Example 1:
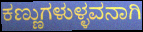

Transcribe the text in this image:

ಕಣ್ಣುಗಳುಳ್ಳವನಾಗಿ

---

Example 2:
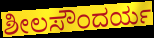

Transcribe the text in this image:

ಶೀಲಸೌಂದರ್ಯ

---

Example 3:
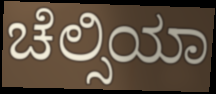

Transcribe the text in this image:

ಚೆಲ್ಸಿಯಾ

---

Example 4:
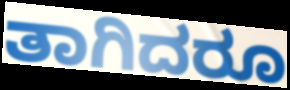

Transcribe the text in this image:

ತಾಗಿದರೂ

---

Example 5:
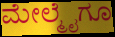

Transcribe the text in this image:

ಮೇಲ್ಮೈಗೂ